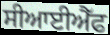
ਸੀਆਈਐੱਫ